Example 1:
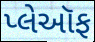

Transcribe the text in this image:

પ્લેઑફ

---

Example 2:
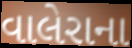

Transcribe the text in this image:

વાલેરાના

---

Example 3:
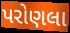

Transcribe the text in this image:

પરોણલા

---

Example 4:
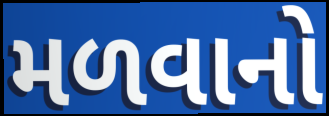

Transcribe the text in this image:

મળવાનો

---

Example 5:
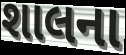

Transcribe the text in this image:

શાલના